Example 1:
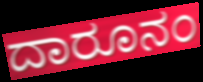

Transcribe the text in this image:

ದಾರೂನಂ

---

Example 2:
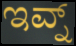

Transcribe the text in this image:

ಇವ್ನ್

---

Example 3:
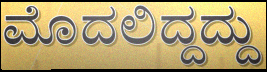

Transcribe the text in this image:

ಮೊದಲಿದ್ದದ್ದು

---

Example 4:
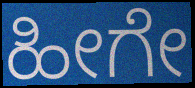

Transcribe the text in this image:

ಹೀಗೇ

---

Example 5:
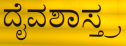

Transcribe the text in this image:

ದೈವಶಾಸ್ತ್ರ